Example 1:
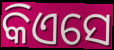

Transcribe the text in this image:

କିଏସେ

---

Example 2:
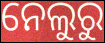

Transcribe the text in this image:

ନେଲୁରୁ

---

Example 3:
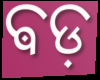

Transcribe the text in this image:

ଵଡ଼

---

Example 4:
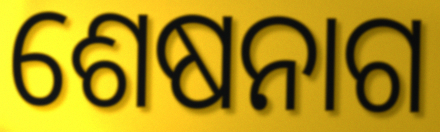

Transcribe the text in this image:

ଶେଷନାଗ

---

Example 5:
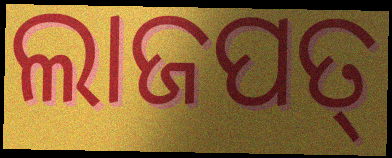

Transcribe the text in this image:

ଲାଜପତ୍